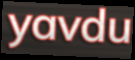
yavdu